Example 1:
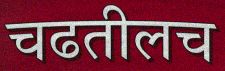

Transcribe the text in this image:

चढतीलच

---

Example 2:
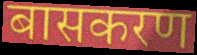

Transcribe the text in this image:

बासकरण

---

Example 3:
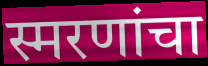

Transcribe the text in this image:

स्मरणांचा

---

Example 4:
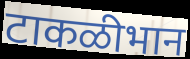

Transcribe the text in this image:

टाकळीभान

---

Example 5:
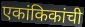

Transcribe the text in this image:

एकांकिकांची